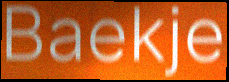
Baekje